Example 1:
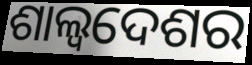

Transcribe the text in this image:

ଶାଲ୍ୱଦେଶର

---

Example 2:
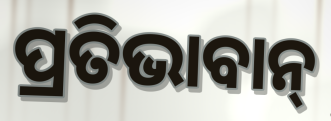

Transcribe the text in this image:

ପ୍ରତିଭାବାନ୍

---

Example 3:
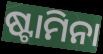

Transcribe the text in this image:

ଷ୍ଟାମିନା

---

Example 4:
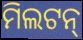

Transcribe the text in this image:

ମିଲଟନ୍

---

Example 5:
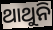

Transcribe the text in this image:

ଥାଥୁନି